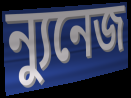
ন্যুনেজ